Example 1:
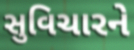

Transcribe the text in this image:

સુવિચારને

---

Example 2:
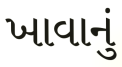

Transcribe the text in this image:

ખાવાનું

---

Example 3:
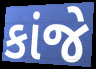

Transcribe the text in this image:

કાંજે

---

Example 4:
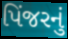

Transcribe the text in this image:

પિંજરનું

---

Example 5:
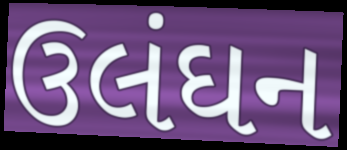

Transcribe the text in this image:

ઉલંઘન